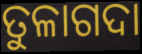
ତୁଳାଗଦା